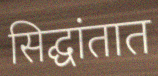
सिद्घांतात